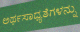
ಅರ್ಥಸಾಧ್ಯತೆಗಳನ್ನು